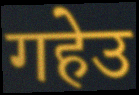
गहेउ